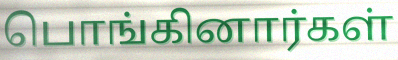
பொங்கினார்கள்